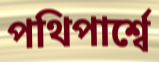
পথিপার্শ্বে